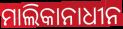
ମାଲିକାନାଧୀନ